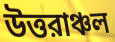
উত্তরাঞ্চল